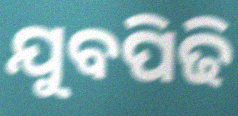
ଯୁବପିଢି